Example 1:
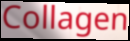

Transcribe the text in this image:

Collagen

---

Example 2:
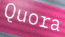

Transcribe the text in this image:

Quora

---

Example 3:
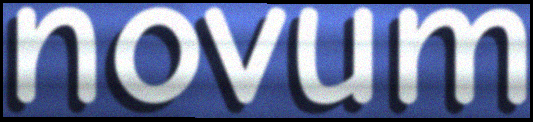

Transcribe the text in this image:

novum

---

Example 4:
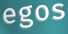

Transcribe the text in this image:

egos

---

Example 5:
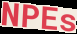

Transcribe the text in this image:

NPEs